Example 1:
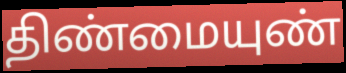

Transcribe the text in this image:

திண்மையுண்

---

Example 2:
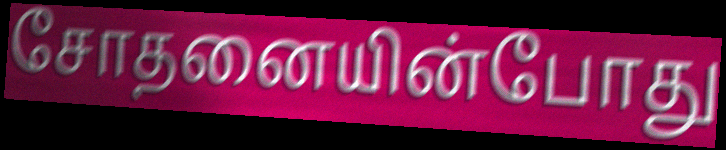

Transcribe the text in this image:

சோதனையின்போது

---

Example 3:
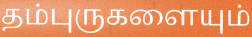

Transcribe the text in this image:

தம்புருகளையும்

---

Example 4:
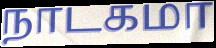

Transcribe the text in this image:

நாடகமா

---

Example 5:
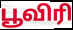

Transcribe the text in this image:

பூவிரி